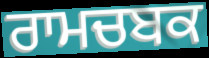
ਰਾਮਚਬਕ